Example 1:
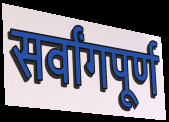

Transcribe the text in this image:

सर्वांगपूर्ण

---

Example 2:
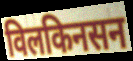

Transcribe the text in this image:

विलकिनसन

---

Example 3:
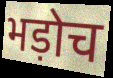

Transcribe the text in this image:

भड़ोच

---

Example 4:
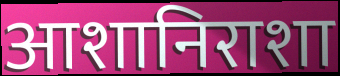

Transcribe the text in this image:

आशानिराशा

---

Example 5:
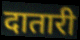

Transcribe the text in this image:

दातारी